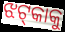
ଝଟ୍‌କାକୁ